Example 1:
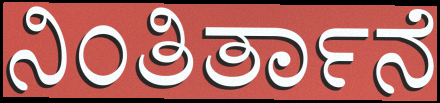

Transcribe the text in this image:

ನಿಂತಿರ್ತಾನೆ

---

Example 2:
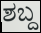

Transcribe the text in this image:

ಶಬ್ದ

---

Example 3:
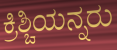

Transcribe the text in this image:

ಕ್ರಿಶ್ಚಿಯನ್ನರು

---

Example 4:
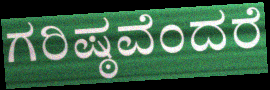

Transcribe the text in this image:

ಗರಿಷ್ಠವೆಂದರೆ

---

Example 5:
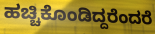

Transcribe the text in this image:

ಹಚ್ಚಿಕೊಂಡಿದ್ದರೆಂದರೆ